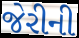
જેરીની